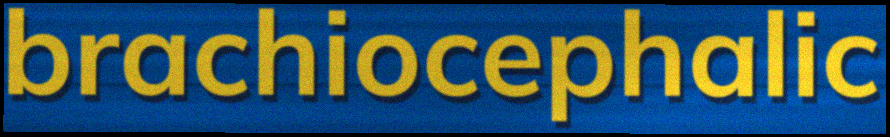
brachiocephalic